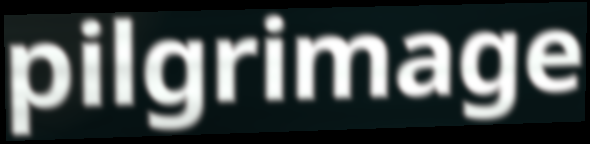
pilgrimage